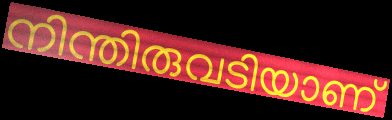
നിന്തിരുവടിയാണ്